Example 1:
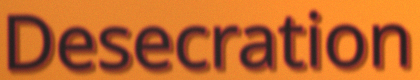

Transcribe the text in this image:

Desecration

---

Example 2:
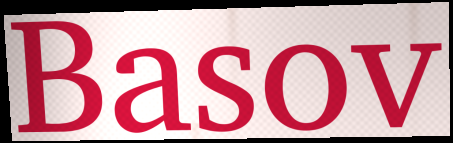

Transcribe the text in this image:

Basov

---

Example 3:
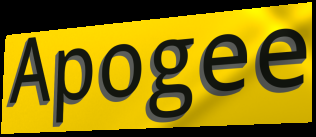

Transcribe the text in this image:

Apogee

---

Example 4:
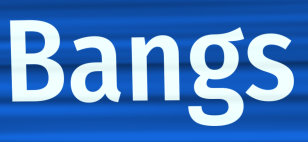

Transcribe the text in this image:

Bangs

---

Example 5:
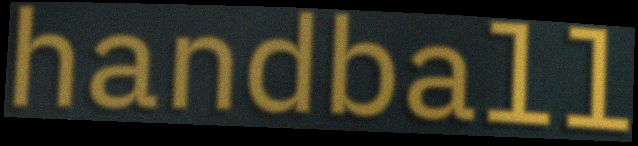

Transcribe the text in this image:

handball